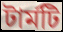
টার্মটি